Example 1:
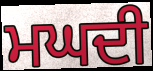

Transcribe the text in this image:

ਮਘਦੀ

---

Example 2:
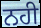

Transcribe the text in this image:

ਨਹੀ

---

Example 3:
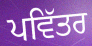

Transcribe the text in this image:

ਪਵਿੱਤਰ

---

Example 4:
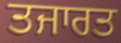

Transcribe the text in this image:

ਤਜਾਰਤ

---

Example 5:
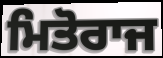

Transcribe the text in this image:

ਮਿਤੋਰਾਜ